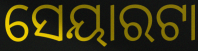
ସେୟାରଟା